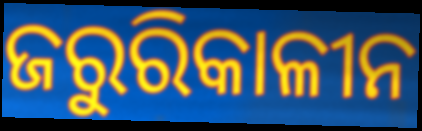
ଜରୁରିକାଳୀନ